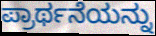
ಪ್ರಾರ್ಥನೆಯನ್ನು